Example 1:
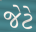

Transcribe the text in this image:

જેટે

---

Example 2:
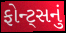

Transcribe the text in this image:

ફોન્ટ્સનું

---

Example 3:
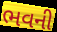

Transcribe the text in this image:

ભવની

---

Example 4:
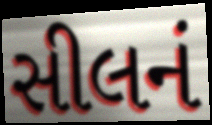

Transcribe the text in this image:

સીલનં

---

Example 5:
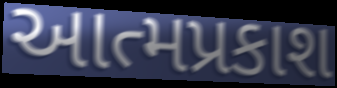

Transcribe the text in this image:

આત્મપ્રકાશ